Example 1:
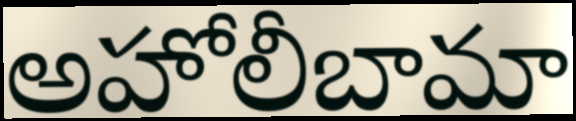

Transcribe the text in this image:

అహోలీబామా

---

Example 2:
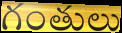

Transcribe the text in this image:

గంతులు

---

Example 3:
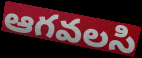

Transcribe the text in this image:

ఆగవలసి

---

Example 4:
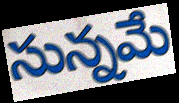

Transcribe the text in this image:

సున్నమే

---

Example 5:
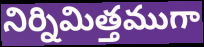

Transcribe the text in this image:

నిర్నిమిత్తముగా